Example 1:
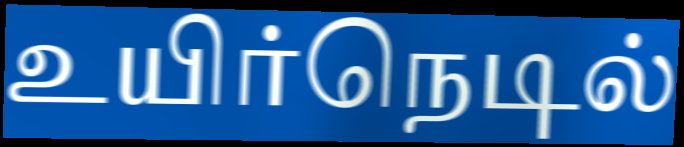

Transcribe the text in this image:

உயிர்நெடில்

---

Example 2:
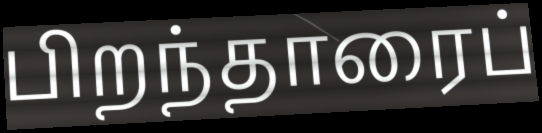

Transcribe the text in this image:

பிறந்தாரைப்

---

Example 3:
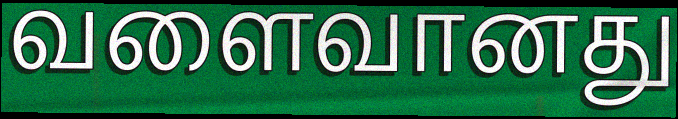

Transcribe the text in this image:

வளைவானது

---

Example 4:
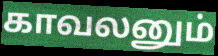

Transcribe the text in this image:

காவலனும்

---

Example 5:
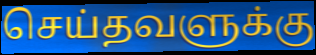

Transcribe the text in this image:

செய்தவளுக்கு